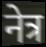
नेत्र